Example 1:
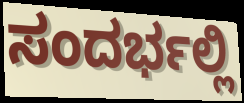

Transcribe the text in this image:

ಸಂದರ್ಭಲ್ಲಿ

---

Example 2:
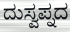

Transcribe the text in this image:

ದುಸ್ವಪ್ನದ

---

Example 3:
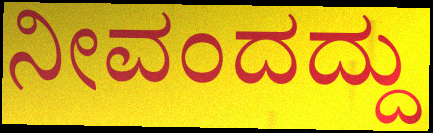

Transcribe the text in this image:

ನೀವಂದದ್ದು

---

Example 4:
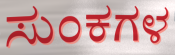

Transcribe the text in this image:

ಸುಂಕಗಳ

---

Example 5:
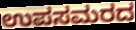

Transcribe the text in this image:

ಉಪಸಮರದ